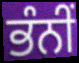
ਭੰਨੀਂ